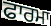
ਫਾਰਮਾ